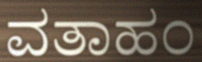
ವತಾಹಂ